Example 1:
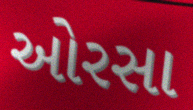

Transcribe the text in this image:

ઓરસા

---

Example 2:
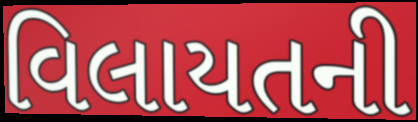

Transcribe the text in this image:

વિલાયતની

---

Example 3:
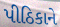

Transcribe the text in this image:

પીઠિકાને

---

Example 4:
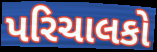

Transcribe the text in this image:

પરિચાલકો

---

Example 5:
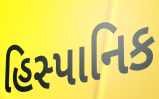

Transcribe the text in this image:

હિસ્પાનિક